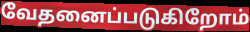
வேதனைப்படுகிறோம்